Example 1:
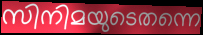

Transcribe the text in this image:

സിനിമയുടെതന്നെ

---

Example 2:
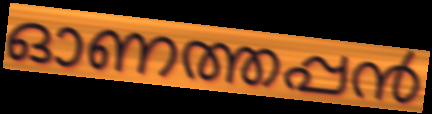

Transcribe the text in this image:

ഓണത്തപ്പൻ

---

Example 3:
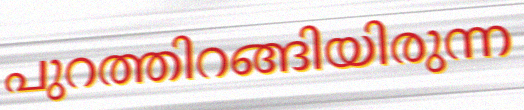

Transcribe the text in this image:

പുറത്തിറങ്ങിയിരുന്ന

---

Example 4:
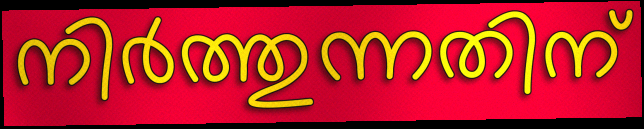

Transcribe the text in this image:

നിർത്തുന്നതിന്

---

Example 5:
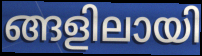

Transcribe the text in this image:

ങ്ങളിലായി